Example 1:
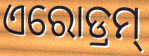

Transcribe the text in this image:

ଏରୋଡ୍ରମ୍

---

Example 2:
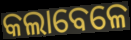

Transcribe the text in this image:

କଲାବେଳେ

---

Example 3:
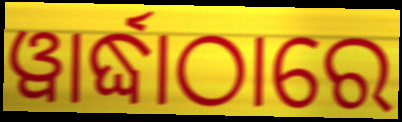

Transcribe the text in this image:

ୱାର୍ଦ୍ଧାଠାରେ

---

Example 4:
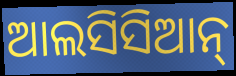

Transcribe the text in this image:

ଆଲସିସିଆନ୍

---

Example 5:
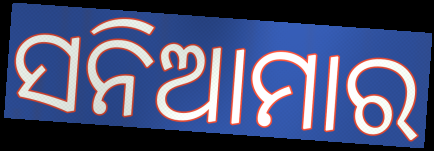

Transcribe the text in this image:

ସନିଆମାର